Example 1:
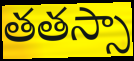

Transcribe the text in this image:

తతస్సా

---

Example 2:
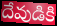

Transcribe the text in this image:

దేవుడికి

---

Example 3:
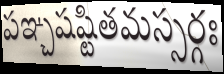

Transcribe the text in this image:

పఞ్చషష్టితమస్సర్గః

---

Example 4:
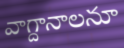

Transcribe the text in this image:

వాగ్దానాలనూ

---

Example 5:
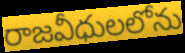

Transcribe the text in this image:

రాజవీధులలోను